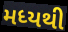
મધ્યથી